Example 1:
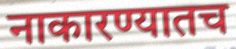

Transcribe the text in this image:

नाकारण्यातच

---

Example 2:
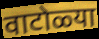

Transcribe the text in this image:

वाटोळ्या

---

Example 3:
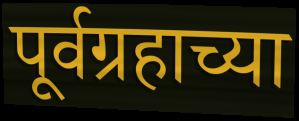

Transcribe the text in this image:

पूर्वग्रहाच्या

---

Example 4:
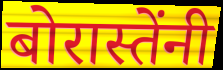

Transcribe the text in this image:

बोरास्तेंनी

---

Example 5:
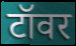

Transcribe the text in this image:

टॉवर